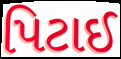
પિટાઈ